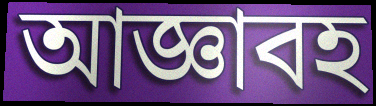
আজ্ঞাবহ